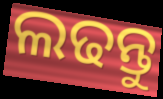
ଲଢନ୍ତୁ